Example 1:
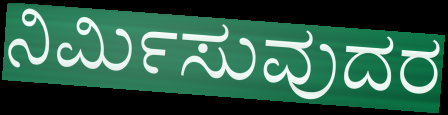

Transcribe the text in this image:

ನಿರ್ಮಿಸುವುದರ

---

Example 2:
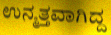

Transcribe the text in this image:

ಉನ್ಮತ್ತವಾಗಿದ್ದ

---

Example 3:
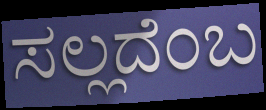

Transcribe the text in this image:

ಸಲ್ಲದೆಂಬ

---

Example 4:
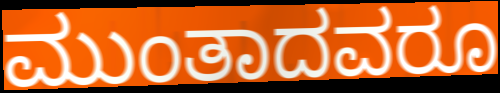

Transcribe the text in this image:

ಮುಂತಾದವರೂ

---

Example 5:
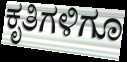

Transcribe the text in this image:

ಕೃತಿಗಳಿಗೂ